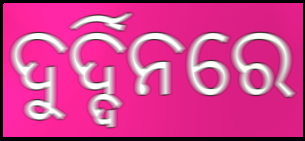
ଦୁର୍ଦ୍ଦିନରେ